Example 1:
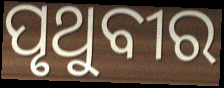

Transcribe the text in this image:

ପୃଥୁବୀର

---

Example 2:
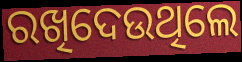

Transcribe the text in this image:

ରଖିଦେଉଥିଲେ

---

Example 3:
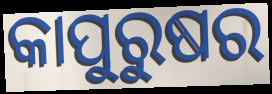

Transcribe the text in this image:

କାପୁରୁଷର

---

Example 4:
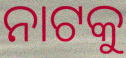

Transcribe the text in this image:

ନାଟକୁ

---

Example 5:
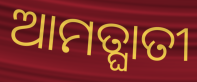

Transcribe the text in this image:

ଆମତ୍ଘାତୀ